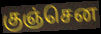
குஞ்சென